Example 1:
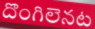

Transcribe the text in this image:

దొంగిలెనట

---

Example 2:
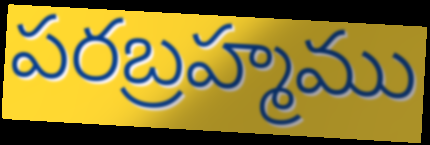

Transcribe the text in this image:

పరబ్రహ్మము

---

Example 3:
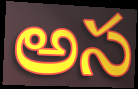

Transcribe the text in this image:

అస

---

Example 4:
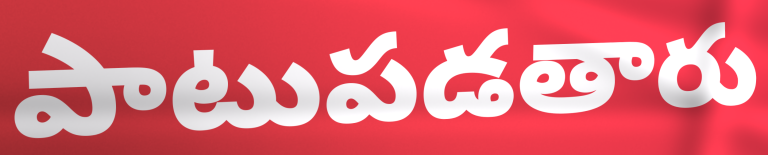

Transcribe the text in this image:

పాటుపడతారు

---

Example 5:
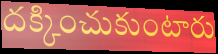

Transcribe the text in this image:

దక్కించుకుంటారు